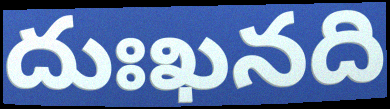
దుఃఖనది